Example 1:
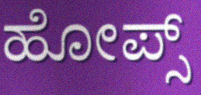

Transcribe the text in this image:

ಹೋಪ್ಸ್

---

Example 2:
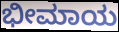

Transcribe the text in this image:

ಭೀಮಾಯ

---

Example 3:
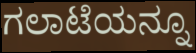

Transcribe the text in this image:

ಗಲಾಟೆಯನ್ನೂ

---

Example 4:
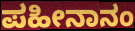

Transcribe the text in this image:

ಪಹೀನಾನಂ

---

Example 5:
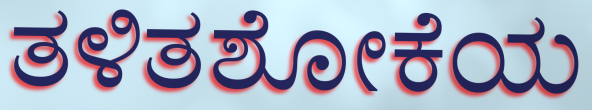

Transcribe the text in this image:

ತಳಿತಶೋಕೆಯ